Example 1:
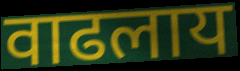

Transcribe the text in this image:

वाढलाय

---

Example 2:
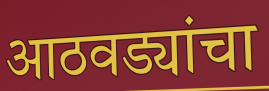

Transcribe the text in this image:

आठवड्यांचा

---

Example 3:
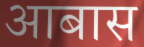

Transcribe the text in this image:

आबास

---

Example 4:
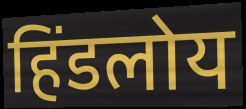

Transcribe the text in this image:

हिंडलोय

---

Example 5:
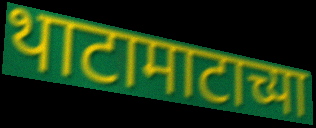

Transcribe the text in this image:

थाटामाटाच्या